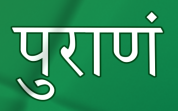
पुराणं